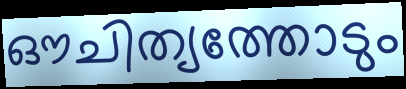
ഔചിത്യത്തോടും